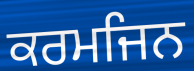
ਕਰਮਜਿਨ